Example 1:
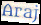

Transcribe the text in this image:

Araj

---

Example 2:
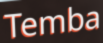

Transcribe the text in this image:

Temba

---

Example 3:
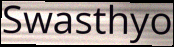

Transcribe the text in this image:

Swasthyo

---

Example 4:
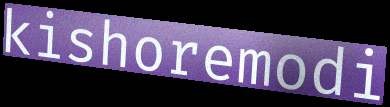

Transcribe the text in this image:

kishoremodi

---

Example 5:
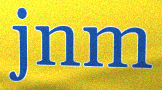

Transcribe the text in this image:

jnm